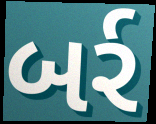
બર્ર